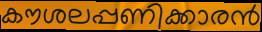
കൗശലപ്പണിക്കാരൻ